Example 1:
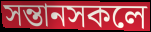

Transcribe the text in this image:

সন্তানসকলে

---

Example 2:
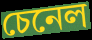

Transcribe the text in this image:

চেনেল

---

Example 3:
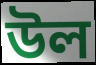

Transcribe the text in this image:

উল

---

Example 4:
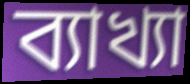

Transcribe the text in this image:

ব্যাখ্যা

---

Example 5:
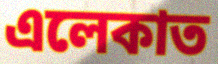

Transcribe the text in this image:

এলেকাত